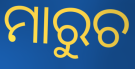
ମାରୁଚ